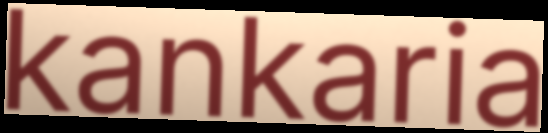
kankaria